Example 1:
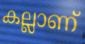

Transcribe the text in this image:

കല്ലാണ്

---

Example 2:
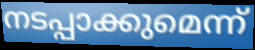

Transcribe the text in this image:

നടപ്പാക്കുമെന്ന്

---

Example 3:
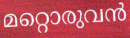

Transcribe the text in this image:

മറ്റൊരുവൻ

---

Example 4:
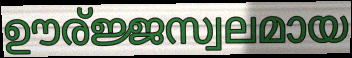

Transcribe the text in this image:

ഊര്ജ്ജസ്വലമായ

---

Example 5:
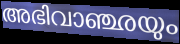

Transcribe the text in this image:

അഭിവാഞ്ഛയും